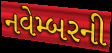
નવેમ્બરની